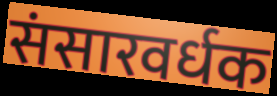
संसारवर्धक